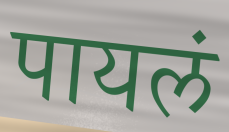
पायलं